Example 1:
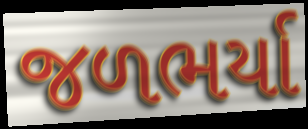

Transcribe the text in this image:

જળભર્યા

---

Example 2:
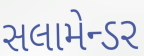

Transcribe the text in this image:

સલામેન્ડર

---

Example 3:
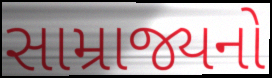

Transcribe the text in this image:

સામ્રાજ્યનો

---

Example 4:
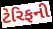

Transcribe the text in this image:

ટેરિફની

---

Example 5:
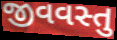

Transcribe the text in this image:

જીવવસ્તુ